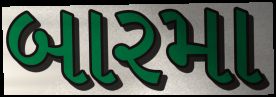
બારમા